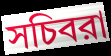
সচিবরা